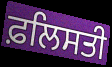
ਫ਼ਲਿਸਤੀ